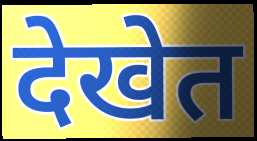
देखेत